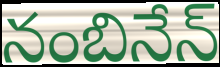
నంబినేన్